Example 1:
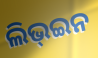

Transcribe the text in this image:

ଲିଭ୍ଇନ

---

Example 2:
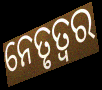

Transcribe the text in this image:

ନେତୃତ୍ଵର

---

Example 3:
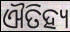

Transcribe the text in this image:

ଐତିହ୍ୟ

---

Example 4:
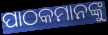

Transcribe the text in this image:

ପାଠକମାନଙ୍କୁ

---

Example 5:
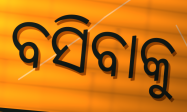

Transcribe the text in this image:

ବସିବାକୁ